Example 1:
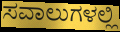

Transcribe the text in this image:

ಸವಾಲುಗಳಲ್ಲಿ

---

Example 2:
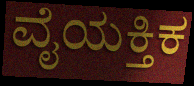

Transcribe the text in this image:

ವೈಯಕ್ತಿಕ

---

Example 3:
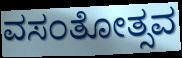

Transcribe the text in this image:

ವಸಂತೋತ್ಸವ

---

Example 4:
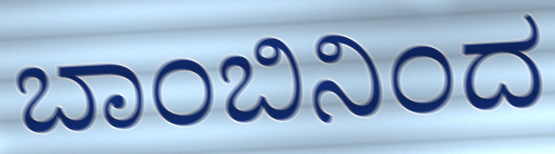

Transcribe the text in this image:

ಬಾಂಬಿನಿಂದ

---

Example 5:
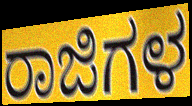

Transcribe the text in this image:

ರಾಜಿಗಳ